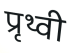
प्रृथ्वी